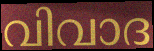
വിവാദ